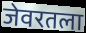
जेवरतला